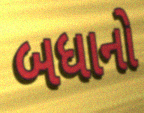
બધાનો